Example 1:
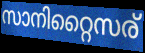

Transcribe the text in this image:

സാനിറ്റൈസര്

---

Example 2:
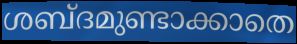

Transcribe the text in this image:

ശബ്ദമുണ്ടാക്കാതെ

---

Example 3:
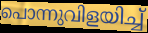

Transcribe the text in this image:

പൊന്നുവിളയിച്ച്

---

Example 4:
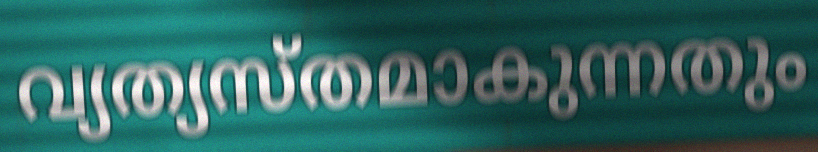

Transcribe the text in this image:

വ്യത്യസ്തമാകുന്നതും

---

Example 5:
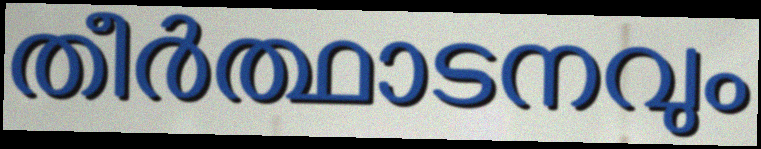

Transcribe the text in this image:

തീർത്ഥാടനവും